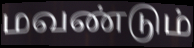
மவண்டும்